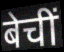
बेचीं